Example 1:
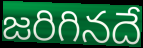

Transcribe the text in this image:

జరిగినదే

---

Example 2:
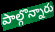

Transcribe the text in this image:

పాల్గొన్నారు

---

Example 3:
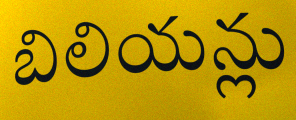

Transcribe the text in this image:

బిలియన్లు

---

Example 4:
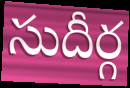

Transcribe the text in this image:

సుదీర్గ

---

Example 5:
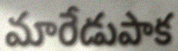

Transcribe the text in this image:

మారేడుపాక